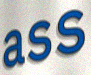
ass